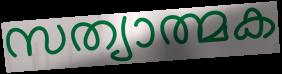
സത്യാത്മക